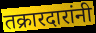
तक्रारदारांनी